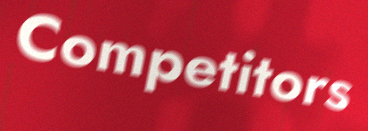
Competitors